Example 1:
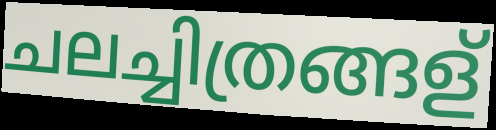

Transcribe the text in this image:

ചലച്ചിത്രങ്ങള്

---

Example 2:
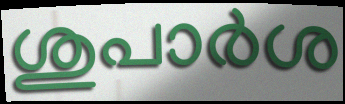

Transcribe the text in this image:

ശുപാർശ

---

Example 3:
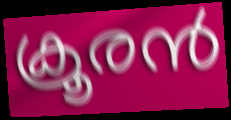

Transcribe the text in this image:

ക്രൂരൻ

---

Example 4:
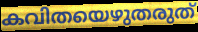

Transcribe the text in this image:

കവിതയെഴുതരുത്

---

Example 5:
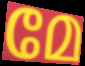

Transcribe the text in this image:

മേ